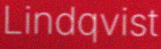
Lindqvist